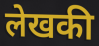
लेखकी